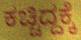
ಕಚ್ಚಿದ್ದಕ್ಕೆ